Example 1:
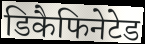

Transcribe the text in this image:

डिकैफिनेटेड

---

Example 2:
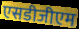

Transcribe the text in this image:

एसडीजीएम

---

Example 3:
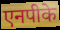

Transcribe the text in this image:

एनपीके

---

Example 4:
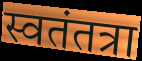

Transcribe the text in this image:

स्वतंतत्रा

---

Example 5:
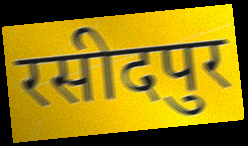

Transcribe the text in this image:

रसीदपुर